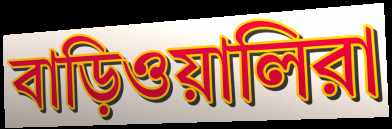
বাড়িওয়ালিরা